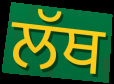
ਲੱਥ